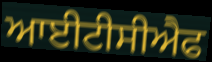
ਆਈਟੀਸੀਐਫ